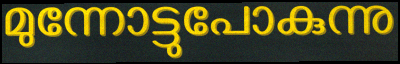
മുന്നോട്ടുപോകുന്നു